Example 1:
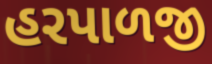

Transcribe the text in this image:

હરપાળજી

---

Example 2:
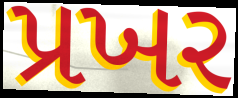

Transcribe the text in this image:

પ્રખર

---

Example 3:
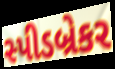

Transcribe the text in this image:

સ્પીડબ્રેકર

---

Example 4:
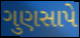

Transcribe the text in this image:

ગુણસાપે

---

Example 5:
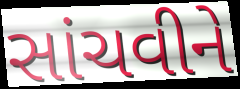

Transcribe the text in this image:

સાંચવીને